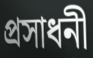
প্রসাধনী